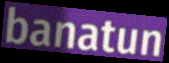
banatun